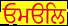
ਓਮੳਲਿ